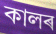
কালৰ